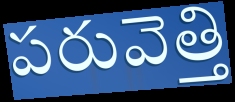
పరువెత్తి